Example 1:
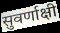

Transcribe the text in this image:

सुवर्णाक्षी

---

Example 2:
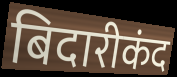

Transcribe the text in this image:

बिदारीकंद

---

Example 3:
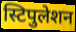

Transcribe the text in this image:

स्टिपुलेशन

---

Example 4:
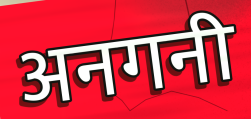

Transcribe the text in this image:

अनगनी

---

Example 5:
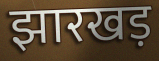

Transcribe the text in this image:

झारखड़